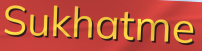
Sukhatme